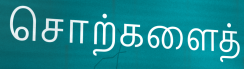
சொற்களைத்